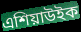
এশিয়াউইক